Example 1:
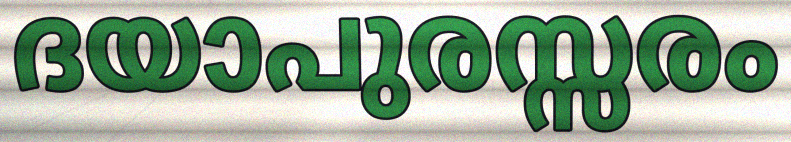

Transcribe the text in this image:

ദയാപുരസ്സരം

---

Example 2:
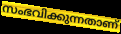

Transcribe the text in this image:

സംഭവിക്കുന്നതാണ്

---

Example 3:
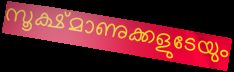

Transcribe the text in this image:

സൂക്ഷ്മാണുക്കളുടേയും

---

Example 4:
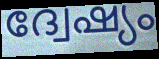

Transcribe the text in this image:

ദ്വേഷ്യം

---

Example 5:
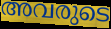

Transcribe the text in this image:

അവരുടെ